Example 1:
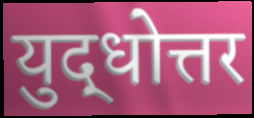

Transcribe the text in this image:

युद्धोत्तर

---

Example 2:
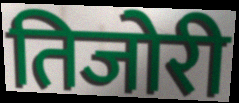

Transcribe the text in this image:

तिजोरी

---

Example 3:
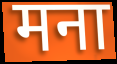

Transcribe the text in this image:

मना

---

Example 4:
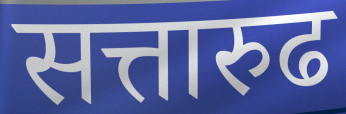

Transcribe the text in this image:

सत्तारुढ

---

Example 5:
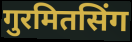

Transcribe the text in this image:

गुरमितसिंग